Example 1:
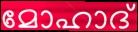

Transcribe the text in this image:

മോഹാദ്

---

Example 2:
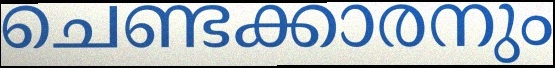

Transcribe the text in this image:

ചെണ്ടക്കാരനും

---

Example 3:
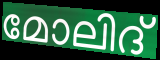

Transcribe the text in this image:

മോലിദ്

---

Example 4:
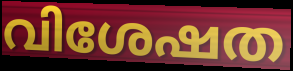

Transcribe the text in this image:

വിശേഷത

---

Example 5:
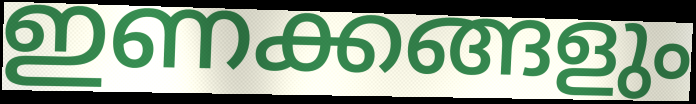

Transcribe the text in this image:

ഇണക്കങ്ങളും